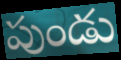
పుండు